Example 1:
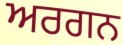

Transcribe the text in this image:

ਅਰਗਨ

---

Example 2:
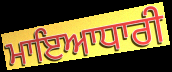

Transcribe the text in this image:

ਮਾਇਆਧਾਰੀ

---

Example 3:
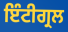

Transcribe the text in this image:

ਇੰਟੀਗ੍ਰਲ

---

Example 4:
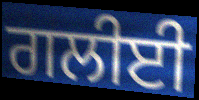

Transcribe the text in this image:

ਗਲੀਈ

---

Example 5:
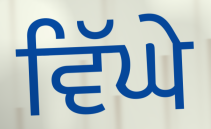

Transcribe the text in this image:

ਵਿੱਘੇ